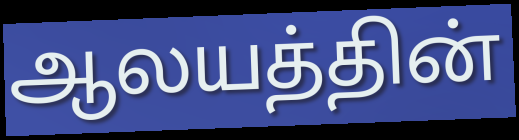
ஆலயத்தின்